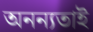
অনন্যতাই